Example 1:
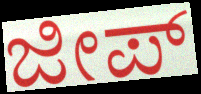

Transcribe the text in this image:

ಜೀಪ್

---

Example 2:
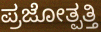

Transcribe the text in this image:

ಪ್ರಜೋತ್ಪತ್ತಿ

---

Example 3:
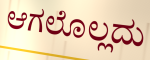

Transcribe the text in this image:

ಆಗಲೊಲ್ಲದು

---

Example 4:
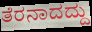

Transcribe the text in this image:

ತೆರನಾದದ್ದು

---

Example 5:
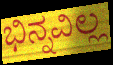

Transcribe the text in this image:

ಭಿನ್ನವಿಲ್ಲ